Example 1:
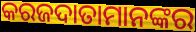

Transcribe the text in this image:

କରଜଦାତାମାନଙ୍କର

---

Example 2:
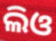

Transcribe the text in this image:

ଲିଓ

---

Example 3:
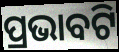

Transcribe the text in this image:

ପ୍ରଭାବଟି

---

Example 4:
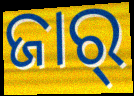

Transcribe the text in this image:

ଜାର୍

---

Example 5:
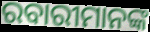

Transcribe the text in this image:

ରବାରୀମାନଙ୍କ